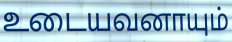
உடையவனாயும்